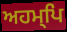
ਅਹਮ੍ਪਿ